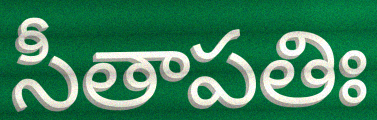
సీతాపతిః